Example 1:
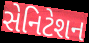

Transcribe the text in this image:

સેનિટેશન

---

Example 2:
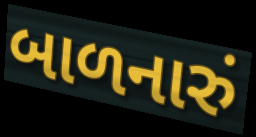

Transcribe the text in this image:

બાળનારું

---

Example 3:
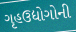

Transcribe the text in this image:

ગૃહઉદ્યોગોની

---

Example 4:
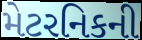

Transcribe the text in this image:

મેટરનિકની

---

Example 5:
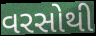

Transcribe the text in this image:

વરસોથી